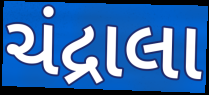
ચંદ્રાલા